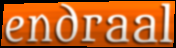
endraal